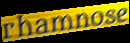
rhamnose